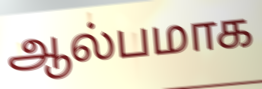
ஆல்பமாக